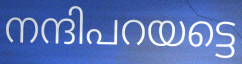
നന്ദിപറയട്ടെ